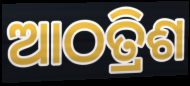
ଆଠତ୍ରିଶ